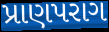
પ્રાણપરાગ